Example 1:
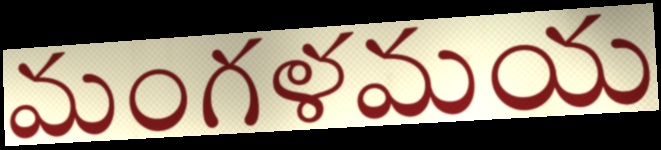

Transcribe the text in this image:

మంగళమయ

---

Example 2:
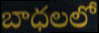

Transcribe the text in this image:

బాధలలో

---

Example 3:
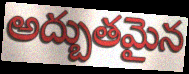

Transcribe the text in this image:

అద్బుతమైన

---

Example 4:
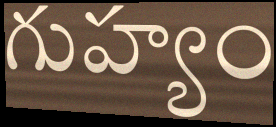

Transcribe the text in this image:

గుహ్యం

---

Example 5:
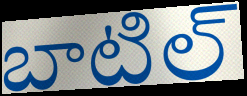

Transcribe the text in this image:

బాటిల్